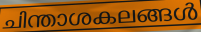
ചിന്താശകലങ്ങൾ